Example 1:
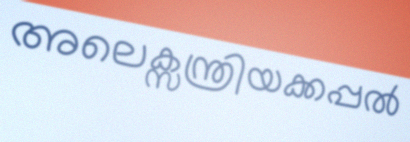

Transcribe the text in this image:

അലെക്സന്ത്രിയക്കപ്പൽ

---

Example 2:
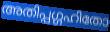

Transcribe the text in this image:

അതിപ്പഗ്ഗഹിതോ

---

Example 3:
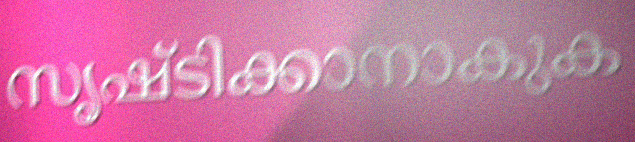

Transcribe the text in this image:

സൃഷ്ടിക്കാനാകുക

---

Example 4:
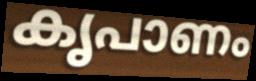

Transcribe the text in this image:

കൃപാണം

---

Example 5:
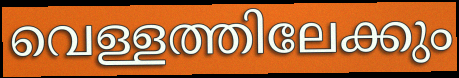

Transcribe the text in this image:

വെള്ളത്തിലേക്കും